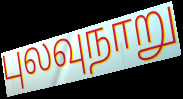
புலவுநாறு